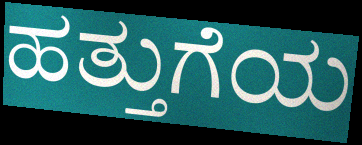
ಹತ್ತುಗೆಯ